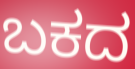
ಬಕದ